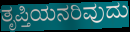
ತೃಪ್ತಿಯನರಿವುದು